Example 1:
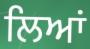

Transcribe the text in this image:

ਲਿਆਂ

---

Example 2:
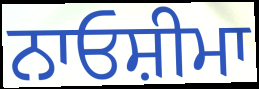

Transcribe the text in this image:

ਨਾਓਸ਼ੀਮਾ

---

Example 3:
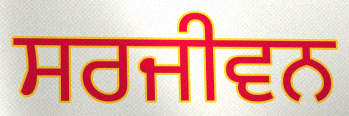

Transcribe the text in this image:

ਸਰਜੀਵਨ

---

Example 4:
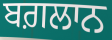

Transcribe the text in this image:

ਬਗ਼ਲਾਨ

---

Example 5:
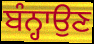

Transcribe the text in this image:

ਬੰਨ੍ਹਾਉਣ